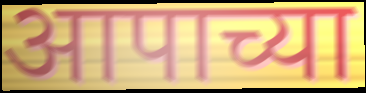
आपाच्या